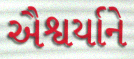
ઐશ્વર્યાને